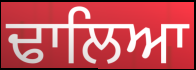
ਢਾਲਿਆ